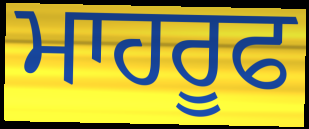
ਮਾਹਰੂਫ